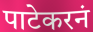
पाटेकरनं